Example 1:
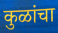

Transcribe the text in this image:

कुळांचा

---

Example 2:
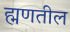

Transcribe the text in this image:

ह्मणतील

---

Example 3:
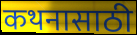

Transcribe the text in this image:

कथनासाठी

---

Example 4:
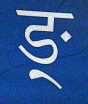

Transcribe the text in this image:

ङ्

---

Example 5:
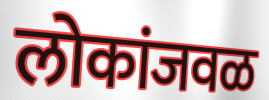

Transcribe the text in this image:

लोकांजवळ